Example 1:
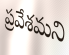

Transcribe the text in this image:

ప్రవేశమని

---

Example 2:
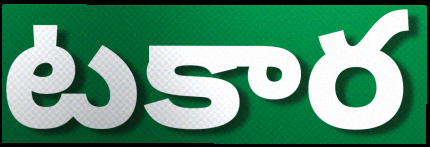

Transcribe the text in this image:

టకార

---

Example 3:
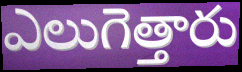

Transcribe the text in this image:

ఎలుగెత్తారు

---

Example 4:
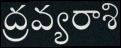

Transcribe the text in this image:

ద్రవ్యరాశి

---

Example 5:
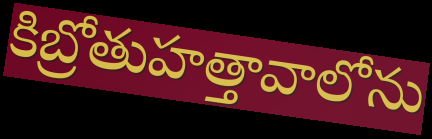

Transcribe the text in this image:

కిబ్రోతుహత్తావాలోను